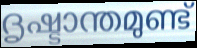
ദൃഷ്ടാന്തമുണ്ട്